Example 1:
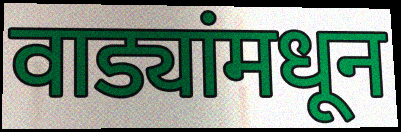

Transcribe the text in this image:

वाड्यांमधून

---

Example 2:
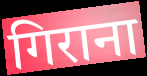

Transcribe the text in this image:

गिराना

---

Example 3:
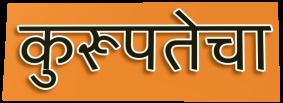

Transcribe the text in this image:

कुरूपतेचा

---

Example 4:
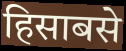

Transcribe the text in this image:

हिसाबसे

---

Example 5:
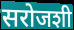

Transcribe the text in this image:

सरोजशी